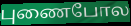
புணைபோல